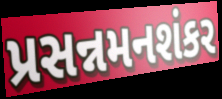
પ્રસન્નમનશંકર